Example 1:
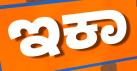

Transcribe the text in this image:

ಇಕಾ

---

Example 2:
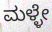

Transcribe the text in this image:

ಮಳ್ಳೇ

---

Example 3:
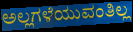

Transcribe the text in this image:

ಅಲ್ಲಗಳೆಯುವಂತಿಲ್ಲ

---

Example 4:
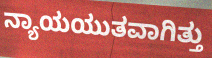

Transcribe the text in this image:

ನ್ಯಾಯಯುತವಾಗಿತ್ತು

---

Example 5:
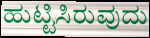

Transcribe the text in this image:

ಹುಟ್ಟಿಸಿರುವುದು